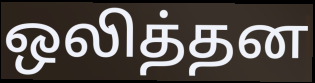
ஒலித்தன